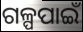
ଗଳ୍ପପାଇଁ